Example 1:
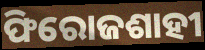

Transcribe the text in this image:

ଫିରୋଜଶାହୀ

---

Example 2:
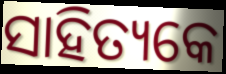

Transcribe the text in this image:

ସାହିତ୍ୟକେ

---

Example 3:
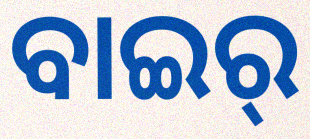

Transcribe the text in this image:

ବାଇର୍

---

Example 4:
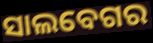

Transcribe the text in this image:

ସାଲବେଗର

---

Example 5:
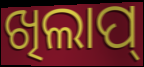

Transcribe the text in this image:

ଖିଲାପ୍